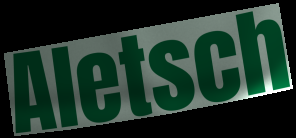
Aletsch